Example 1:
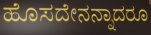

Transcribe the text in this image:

ಹೊಸದೇನನ್ನಾದರೂ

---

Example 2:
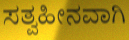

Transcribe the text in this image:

ಸತ್ವಹೀನವಾಗಿ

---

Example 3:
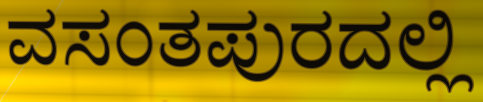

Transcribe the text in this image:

ವಸಂತಪುರದಲ್ಲಿ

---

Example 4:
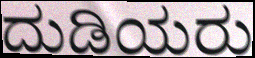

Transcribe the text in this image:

ದುಡಿಯರು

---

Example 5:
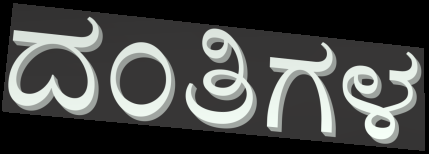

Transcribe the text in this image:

ದಂತಿಗಳ